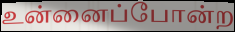
உன்னைப்போன்ற